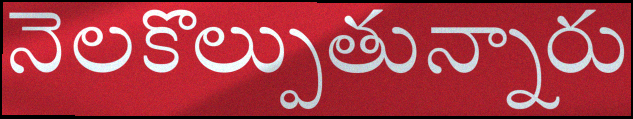
నెలకొల్పుతున్నారు